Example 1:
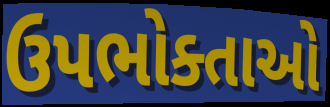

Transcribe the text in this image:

ઉપભોક્તાઓ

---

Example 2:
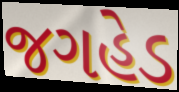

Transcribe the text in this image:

જગહેડ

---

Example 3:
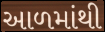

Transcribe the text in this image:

આળમાંથી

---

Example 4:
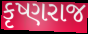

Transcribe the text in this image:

કૃષ્ણરાજ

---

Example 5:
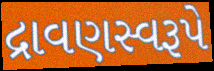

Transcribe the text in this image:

દ્રાવણસ્વરૂપે